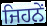
ਜਿਹਨੇਂ